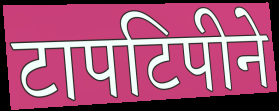
टापटिपीने